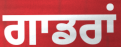
ਗਾਡਰਾਂ